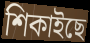
শিকাইছে